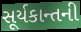
સૂર્યકાન્તની